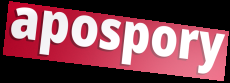
apospory